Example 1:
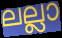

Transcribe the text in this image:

ലല്ലാ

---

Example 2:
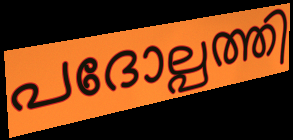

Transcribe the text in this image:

പദോല്പത്തി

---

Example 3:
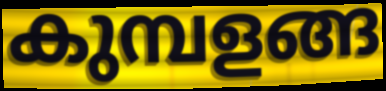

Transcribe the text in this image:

കുമ്പളങ്ങ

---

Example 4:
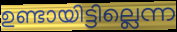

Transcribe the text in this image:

ഉണ്ടായിട്ടില്ലെന്ന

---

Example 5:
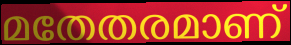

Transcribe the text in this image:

മതേതരമാണ്